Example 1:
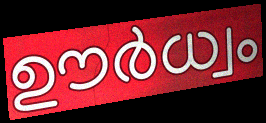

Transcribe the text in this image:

ഊർധ്വം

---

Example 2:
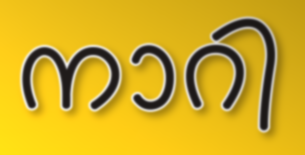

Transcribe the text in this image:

നാറി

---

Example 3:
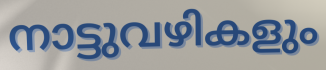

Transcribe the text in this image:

നാട്ടുവഴികളും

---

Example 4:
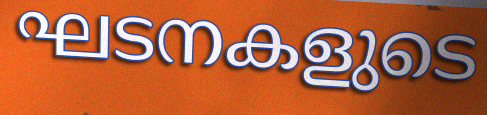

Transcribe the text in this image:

ഘടനകളുടെ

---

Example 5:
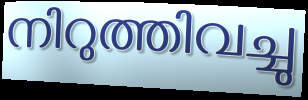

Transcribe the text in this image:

നിറുത്തിവച്ചു